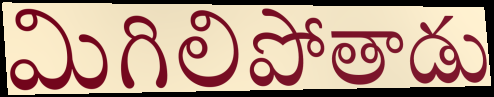
మిగిలిపోతాడు